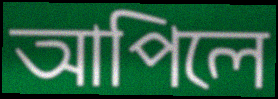
আপিলে